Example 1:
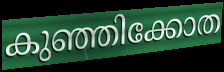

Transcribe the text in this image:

കുഞ്ഞിക്കോത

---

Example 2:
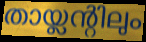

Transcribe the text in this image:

തായ്ലന്റിലും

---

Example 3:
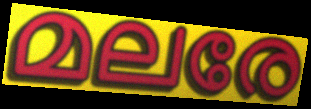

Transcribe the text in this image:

മലരേ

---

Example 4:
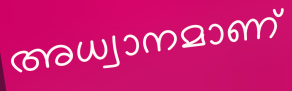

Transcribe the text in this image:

അധ്വാനമാണ്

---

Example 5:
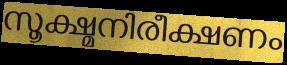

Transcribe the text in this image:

സൂക്ഷ്മനിരീക്ഷണം